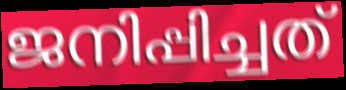
ജനിപ്പിച്ചത്